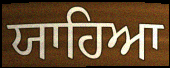
ਯਾਹਿਆ